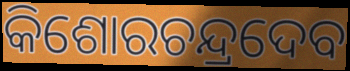
କିଶୋରଚନ୍ଦ୍ରଦେବ